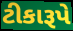
ટીકારૂપે